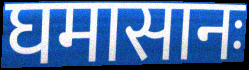
घमासानः